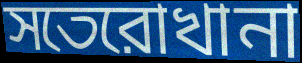
সতেরোখানা